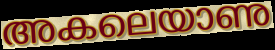
അകലെയാണു